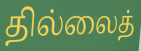
தில்லைத்